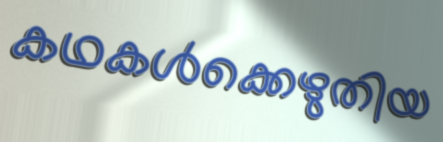
കഥകൾക്കെഴുതിയ